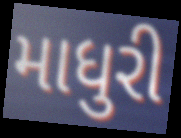
માધુરી